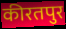
कीरतपुर